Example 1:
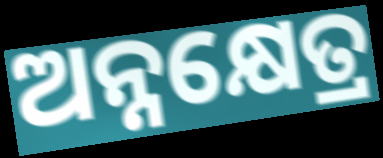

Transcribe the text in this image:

ଅନ୍ନକ୍ଷେତ୍ର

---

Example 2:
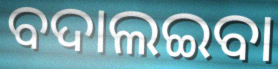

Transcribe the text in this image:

ବଦାଲଇବା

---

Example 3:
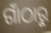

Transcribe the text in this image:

ଗାଁଠାରୁ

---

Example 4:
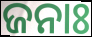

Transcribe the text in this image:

ଜନାଃ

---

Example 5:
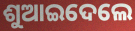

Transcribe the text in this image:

ଶୁଆଇଦେଲେ